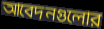
আবেদনগুলোর